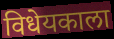
विधेयकाला